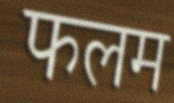
फलम